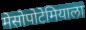
मेसोपोटेमियाला